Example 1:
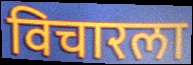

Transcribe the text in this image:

विचारला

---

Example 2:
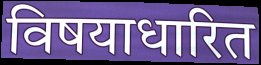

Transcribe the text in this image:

विषयाधारित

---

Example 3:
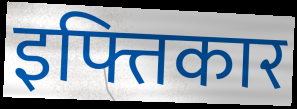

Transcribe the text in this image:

इफ्तिकार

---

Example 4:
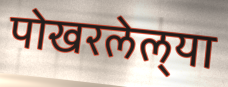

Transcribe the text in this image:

पोखरलेल्या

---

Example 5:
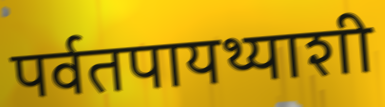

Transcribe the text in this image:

पर्वतपायथ्याशी